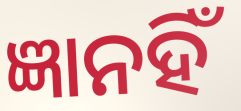
ଜ୍ଞାନହିଁ